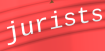
jurists